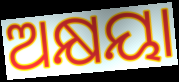
ଅକ୍ଷୟା